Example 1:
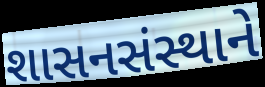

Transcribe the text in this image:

શાસનસંસ્થાને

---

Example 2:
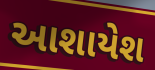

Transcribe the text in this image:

આશાયેશ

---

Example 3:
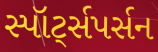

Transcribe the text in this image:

સ્પૉર્ટ્સપર્સન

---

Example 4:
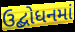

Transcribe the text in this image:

ઉદ્બોધનમાં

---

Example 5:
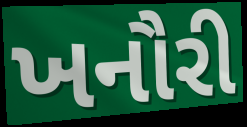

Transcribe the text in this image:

ખનૌરી